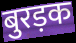
बुरड़क